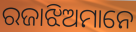
ରଜାଝିଅମାନେ